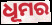
ଧୂମର